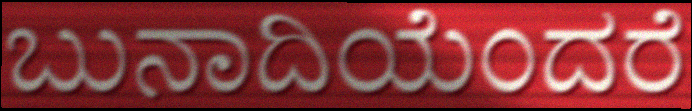
ಬುನಾದಿಯೆಂದರೆ